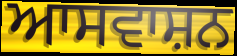
ਆਸਵਾਸ਼ਨ